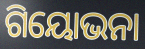
ଗିୟୋଭନା